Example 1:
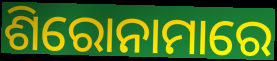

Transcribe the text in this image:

ଶିରୋନାମାରେ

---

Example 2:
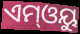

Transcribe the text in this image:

ଏମ୍ଓୟୁ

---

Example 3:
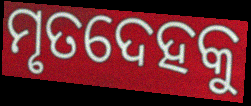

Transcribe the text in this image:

ମୃତଦେହକୁ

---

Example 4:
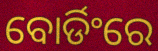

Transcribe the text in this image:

ବୋର୍ଡିଂରେ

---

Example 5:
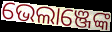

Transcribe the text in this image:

ଭେଲାଞ୍ଜେଙ୍କ